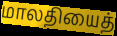
மாலதியைத்